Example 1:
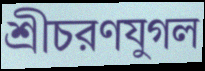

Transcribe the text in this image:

শ্রীচরণযুগল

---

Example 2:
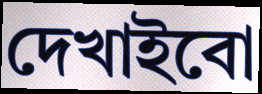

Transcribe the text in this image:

দেখাইবো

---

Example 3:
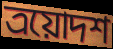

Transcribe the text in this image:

ত্রয়োদশ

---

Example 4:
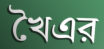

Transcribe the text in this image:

খৈএর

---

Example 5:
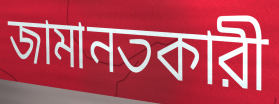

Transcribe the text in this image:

জামানতকারী